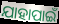
ଯାହାପାଇଁ